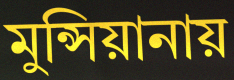
মুন্সিয়ানায়